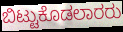
ಬಿಟ್ಟುಕೊಡಲಾರರು